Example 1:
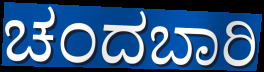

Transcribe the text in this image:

ಚಂದಬಾರಿ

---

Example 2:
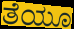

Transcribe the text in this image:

ತೆಯೂ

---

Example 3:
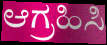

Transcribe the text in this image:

ಆಗ್ರಹಿಸಿ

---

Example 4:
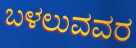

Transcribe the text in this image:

ಬಳಲುವವರ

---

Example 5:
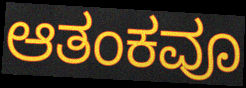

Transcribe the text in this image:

ಆತಂಕವೂ